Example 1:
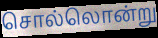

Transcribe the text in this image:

சொல்லொன்று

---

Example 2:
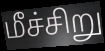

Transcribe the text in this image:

மீச்சிறு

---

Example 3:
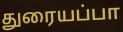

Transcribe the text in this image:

துரையப்பா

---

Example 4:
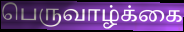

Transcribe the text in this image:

பெருவாழ்க்கை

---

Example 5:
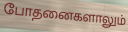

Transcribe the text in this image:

போதனைகளாலும்